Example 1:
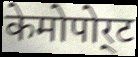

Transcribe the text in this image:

केमोपोर्ट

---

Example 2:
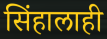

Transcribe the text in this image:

सिंहालाही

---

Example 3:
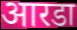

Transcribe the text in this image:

आरडा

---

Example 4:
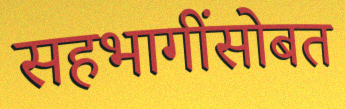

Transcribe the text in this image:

सहभागींसोबत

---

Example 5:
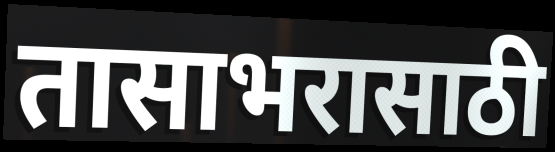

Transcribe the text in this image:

तासाभरासाठी